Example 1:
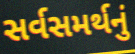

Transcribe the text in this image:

સર્વસમર્થનું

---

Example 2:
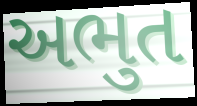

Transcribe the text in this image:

અભુત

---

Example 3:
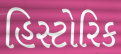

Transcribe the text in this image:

હિસ્ટોરિક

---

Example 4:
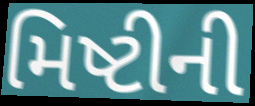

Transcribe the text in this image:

મિષ્ટીની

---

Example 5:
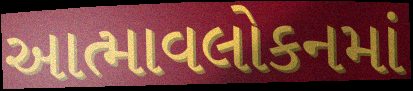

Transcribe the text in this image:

આત્માવલોકનમાં